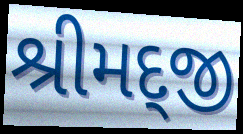
શ્રીમદ્જી